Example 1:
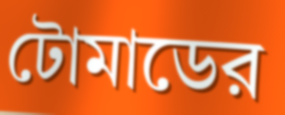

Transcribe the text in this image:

টোমাডের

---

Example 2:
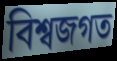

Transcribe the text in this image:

বিশ্বজগত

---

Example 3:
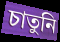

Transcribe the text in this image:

চাতুনি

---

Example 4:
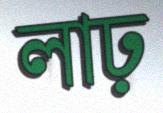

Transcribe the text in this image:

লাঢ়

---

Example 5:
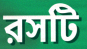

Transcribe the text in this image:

রসটি